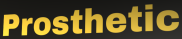
Prosthetic